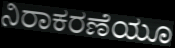
ನಿರಾಕರಣೆಯೂ